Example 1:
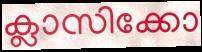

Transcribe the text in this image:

ക്ലാസിക്കോ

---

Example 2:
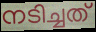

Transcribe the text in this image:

നടിച്ചത്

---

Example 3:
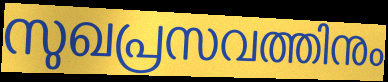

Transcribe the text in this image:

സുഖപ്രസവത്തിനും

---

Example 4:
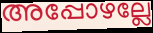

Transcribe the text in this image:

അപ്പോഴല്ലേ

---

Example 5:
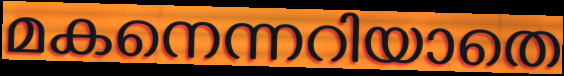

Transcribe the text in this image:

മകനെന്നറിയാതെ